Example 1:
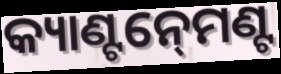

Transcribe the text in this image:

କ୍ୟାଣ୍ଟନ୍‍ମେଣ୍ଟ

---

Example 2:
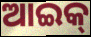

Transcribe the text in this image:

ଆଇକ୍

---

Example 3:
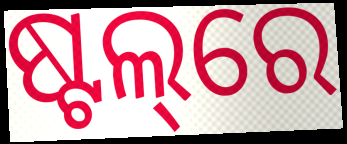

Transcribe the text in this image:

ଷ୍ଟଲ୍‌ରେ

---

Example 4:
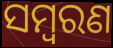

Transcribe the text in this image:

ସମ୍ୱରଣ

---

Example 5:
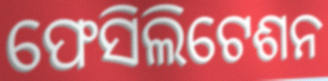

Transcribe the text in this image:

ଫେସିଲିଟେଶନ